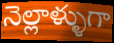
నెల్లాళ్ళుగా